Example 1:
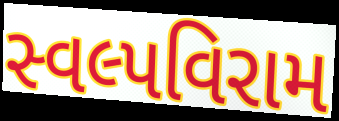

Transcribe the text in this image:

સ્વલ્પવિરામ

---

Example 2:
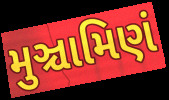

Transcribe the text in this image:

મુઞ્ચામિણં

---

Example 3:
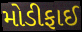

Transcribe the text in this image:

મોડીફાઈ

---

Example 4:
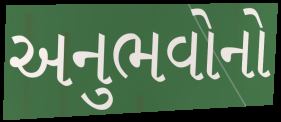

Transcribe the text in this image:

અનુભવોનો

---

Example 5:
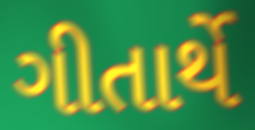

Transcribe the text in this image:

ગીતાર્થે